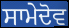
ਸਾਮੇਦੋਵ